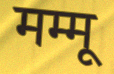
मम्मू